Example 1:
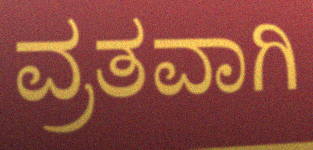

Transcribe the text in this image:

ವ್ರತವಾಗಿ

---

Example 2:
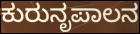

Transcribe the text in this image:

ಕುರುನೃಪಾಲನ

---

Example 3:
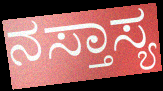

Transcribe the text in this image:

ನಸ್ತಾಸ್ಯ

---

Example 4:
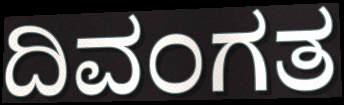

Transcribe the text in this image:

ದಿವಂಗತ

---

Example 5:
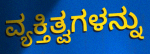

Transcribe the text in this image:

ವ್ಯಕ್ತಿತ್ವಗಳನ್ನು